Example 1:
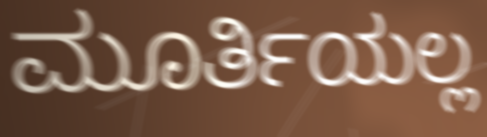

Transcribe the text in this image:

ಮೂರ್ತಿಯಲ್ಲ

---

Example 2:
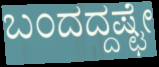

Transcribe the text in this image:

ಬಂದದ್ದಷ್ಟೇ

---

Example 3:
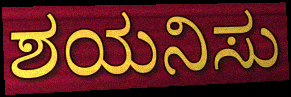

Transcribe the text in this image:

ಶಯನಿಸು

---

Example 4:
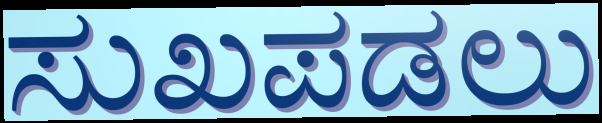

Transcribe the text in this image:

ಸುಖಪಡಲು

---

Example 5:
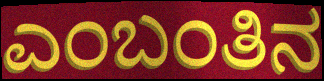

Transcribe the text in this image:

ಎಂಬಂತಿನ